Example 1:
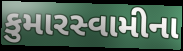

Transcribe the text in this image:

કુમારસ્વામીના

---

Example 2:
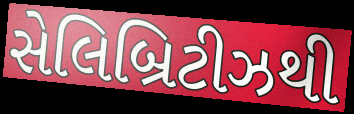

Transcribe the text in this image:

સેલિબ્રિટીઝથી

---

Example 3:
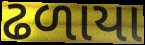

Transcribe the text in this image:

ઢળાયા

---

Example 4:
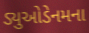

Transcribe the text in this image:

ડ્યુઓડેનમના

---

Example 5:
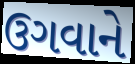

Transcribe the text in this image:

ઉગવાને